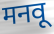
मनवू